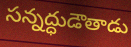
సన్నద్ధుడౌతాడు